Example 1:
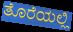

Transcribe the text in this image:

ತೊರೆಯಲ್ಲಿ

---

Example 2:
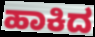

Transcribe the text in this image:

ಹಾಕಿದ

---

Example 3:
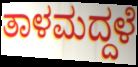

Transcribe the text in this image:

ತಾಳಮದ್ದಳೆ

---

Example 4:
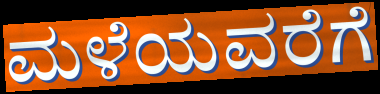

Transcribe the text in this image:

ಮಳೆಯವರೆಗೆ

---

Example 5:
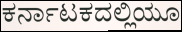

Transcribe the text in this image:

ಕರ್ನಾಟಕದಲ್ಲಿಯೂ